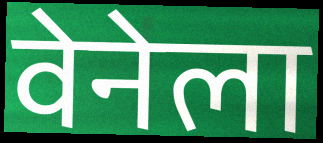
वेनेला